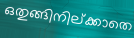
ഒതുങ്ങിനില്ക്കാതെ